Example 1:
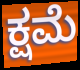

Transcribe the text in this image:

ಕ್ಷಮೆ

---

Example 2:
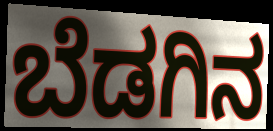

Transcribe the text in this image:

ಬೆಡಗಿನ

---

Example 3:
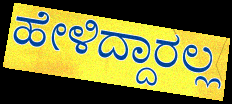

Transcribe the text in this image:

ಹೇಳಿದ್ದಾರಲ್ಲ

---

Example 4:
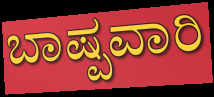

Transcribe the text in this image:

ಬಾಷ್ಪವಾರಿ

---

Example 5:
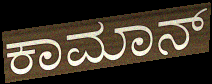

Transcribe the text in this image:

ಕಾಮಾನ್